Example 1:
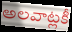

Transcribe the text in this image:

అలవాట్లకీ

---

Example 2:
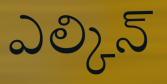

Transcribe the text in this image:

ఎల్కిన్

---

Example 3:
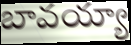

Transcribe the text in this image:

బావయ్యా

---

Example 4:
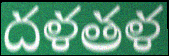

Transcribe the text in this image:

దళతళ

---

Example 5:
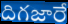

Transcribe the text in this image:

దిగజారే